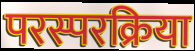
परस्परक्रिया